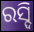
ରସ୍ଦି